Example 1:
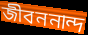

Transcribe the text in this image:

জীবননান্দ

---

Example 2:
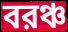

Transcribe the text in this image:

বরঞ্চ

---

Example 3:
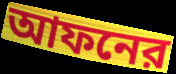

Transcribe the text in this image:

আফনের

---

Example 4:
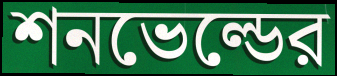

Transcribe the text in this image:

শনভেল্ডের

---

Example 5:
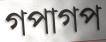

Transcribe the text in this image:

গপাগপ